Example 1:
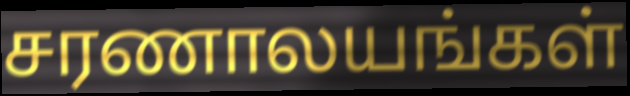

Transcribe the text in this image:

சரணாலயங்கள்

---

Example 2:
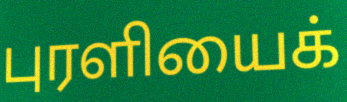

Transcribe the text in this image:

புரளியைக்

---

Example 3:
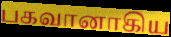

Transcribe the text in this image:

பகவானாகிய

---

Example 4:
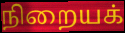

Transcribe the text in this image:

நிறையக்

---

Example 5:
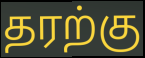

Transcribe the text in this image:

தரற்கு